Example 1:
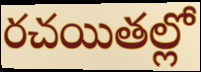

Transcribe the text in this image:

రచయితల్లో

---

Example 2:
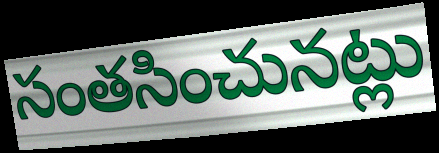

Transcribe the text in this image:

సంతసించునట్లు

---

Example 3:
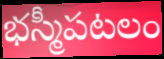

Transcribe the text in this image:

భస్మీపటలం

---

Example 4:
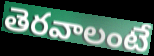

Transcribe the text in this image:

తెరవాలంటే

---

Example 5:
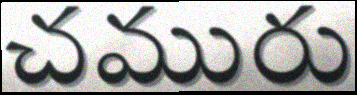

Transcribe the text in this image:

చమురు